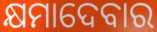
କ୍ଷମାଦେବାର